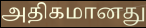
அதிகமானது